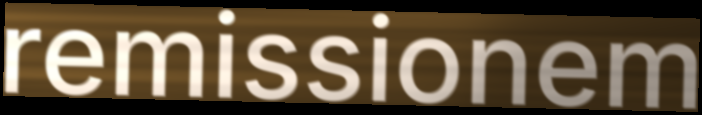
remissionem